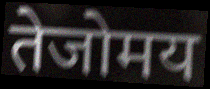
तेजोमय